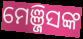
ମେଞ୍ଜିସଙ୍କ